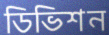
ডিভিশন